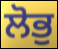
ਲੋਭੁ